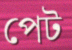
পেট